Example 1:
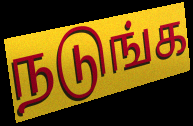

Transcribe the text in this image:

நடுங்க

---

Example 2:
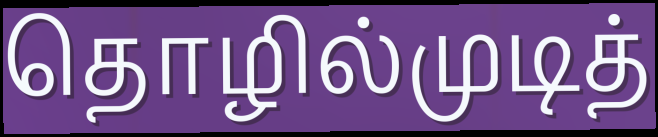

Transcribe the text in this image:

தொழில்முடித்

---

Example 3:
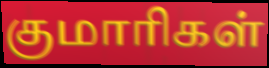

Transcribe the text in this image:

குமாரிகள்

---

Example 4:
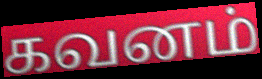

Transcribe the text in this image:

கவனம்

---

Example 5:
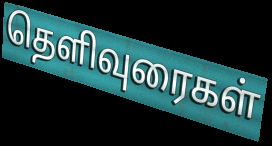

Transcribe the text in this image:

தெளிவுரைகள்